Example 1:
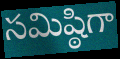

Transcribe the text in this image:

సమిష్ఠిగా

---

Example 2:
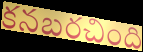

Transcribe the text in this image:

కనబరచింది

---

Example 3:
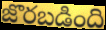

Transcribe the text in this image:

జొరబడింది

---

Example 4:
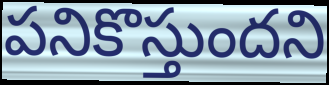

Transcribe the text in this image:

పనికొస్తుందని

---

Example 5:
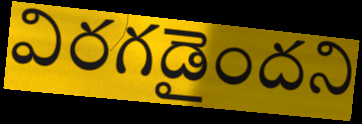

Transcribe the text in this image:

విరగడైందని